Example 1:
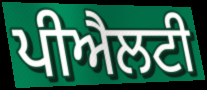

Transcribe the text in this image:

ਪੀਐਲਟੀ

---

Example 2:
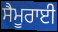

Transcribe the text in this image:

ਸੈਮੂਰਾਈ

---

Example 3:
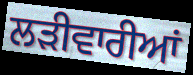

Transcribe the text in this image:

ਲੜੀਵਾਰੀਆਂ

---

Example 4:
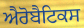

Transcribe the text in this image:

ਐਰੋਬੈਟਿਕਸ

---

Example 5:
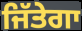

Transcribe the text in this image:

ਜਿੱਤੇਗਾ